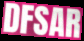
DFSAR